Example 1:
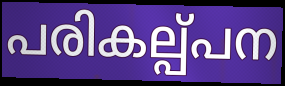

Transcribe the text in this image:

പരികല്പ്പന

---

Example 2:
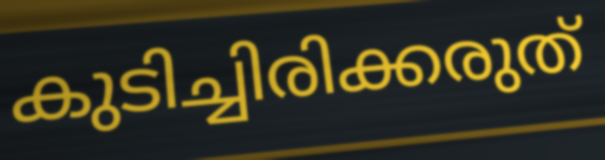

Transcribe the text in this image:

കുടിച്ചിരിക്കരുത്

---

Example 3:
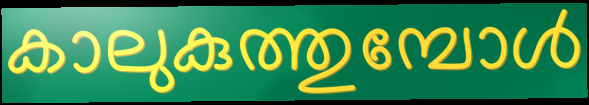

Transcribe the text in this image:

കാലുകുത്തുമ്പോൾ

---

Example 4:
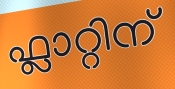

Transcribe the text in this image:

ഫ്ലാറ്റിന്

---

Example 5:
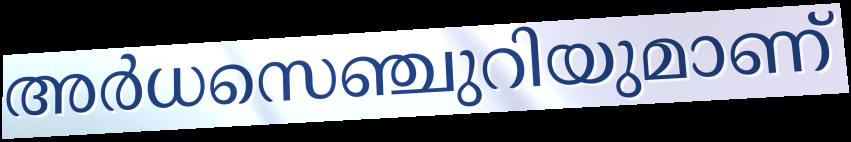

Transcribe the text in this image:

അർധസെഞ്ചുറിയുമാണ്